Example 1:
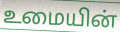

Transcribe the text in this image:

உமையின்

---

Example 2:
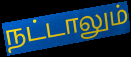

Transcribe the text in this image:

நட்டாலும்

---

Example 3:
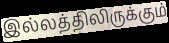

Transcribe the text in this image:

இல்லத்திலிருக்கும்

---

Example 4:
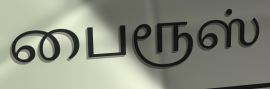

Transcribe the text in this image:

பைரூஸ்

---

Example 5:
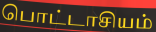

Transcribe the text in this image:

பொட்டாசியம்